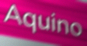
Aquino